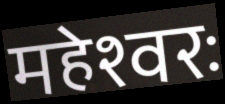
महेश्वरः